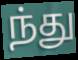
ந்து